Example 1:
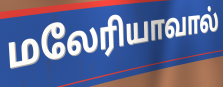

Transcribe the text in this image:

மலேரியாவால்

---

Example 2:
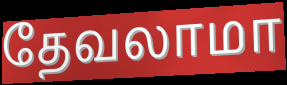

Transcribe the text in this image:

தேவலாமா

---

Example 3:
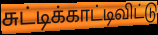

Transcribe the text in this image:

சுட்டிக்காட்டிவிட்டு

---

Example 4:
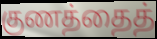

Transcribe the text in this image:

குணத்தைத்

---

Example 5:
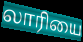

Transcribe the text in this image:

லாரியை